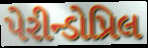
પેરીન્ડોપ્રિલ